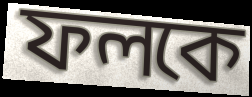
ফলকে